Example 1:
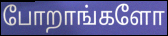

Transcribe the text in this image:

போறாங்களோ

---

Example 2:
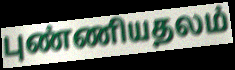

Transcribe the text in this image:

புண்ணியதலம்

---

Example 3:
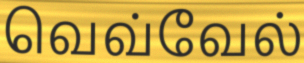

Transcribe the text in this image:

வெவ்வேல்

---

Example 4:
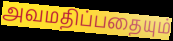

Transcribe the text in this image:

அவமதிப்பதையும்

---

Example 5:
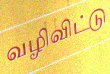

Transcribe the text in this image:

வழிவிட்டு